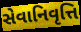
સેવાનિવૃત્તિ